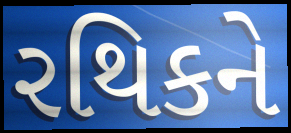
રથિકને